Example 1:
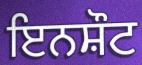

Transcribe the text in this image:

ਇਨਸ਼ੌਟ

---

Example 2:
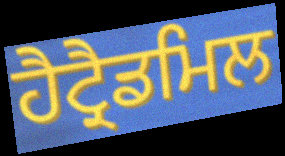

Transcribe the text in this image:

ਹੈਟ੍ਰੈਡਮਿਲ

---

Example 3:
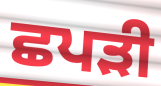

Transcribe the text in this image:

ਛਪੜੀ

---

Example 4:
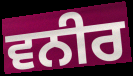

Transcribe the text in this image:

ਵਨੀਰ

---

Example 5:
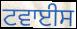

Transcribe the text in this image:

ਟਵਾਈਸ